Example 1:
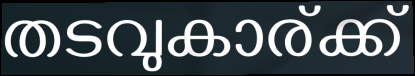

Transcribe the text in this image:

തടവുകാര്ക്ക്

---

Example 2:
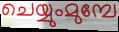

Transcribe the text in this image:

ചെയ്യുംമുമ്പേ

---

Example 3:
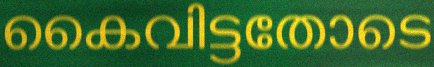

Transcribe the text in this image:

കൈവിട്ടതോടെ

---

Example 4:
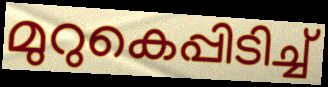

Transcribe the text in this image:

മുറുകെപ്പിടിച്ച്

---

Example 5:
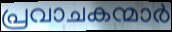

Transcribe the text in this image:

പ്രവാചകന്മാർ